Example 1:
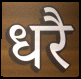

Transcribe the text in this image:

धरै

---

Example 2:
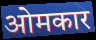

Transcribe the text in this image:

ओमकार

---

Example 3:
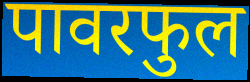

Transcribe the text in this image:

पावरफुल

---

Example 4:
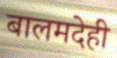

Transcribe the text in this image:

बालमदेही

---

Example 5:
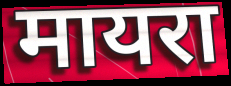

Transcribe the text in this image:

मायरा